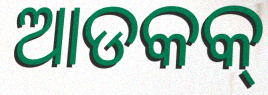
ଆଡକକ୍